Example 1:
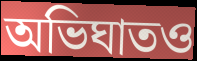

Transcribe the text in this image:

অভিঘাতও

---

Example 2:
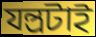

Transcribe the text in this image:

যন্ত্রটাই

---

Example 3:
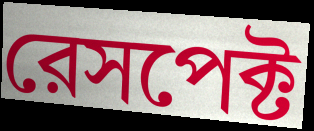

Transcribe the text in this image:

রেসপেক্ট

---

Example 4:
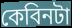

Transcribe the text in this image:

কেবিনটা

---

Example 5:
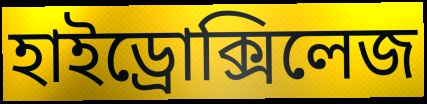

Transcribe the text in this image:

হাইড্রোক্সিলেজ